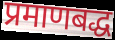
प्रमाणबद्ध